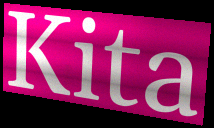
Kita